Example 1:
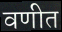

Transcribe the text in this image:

वणीत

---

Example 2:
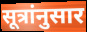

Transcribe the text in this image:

सूत्रांनुसार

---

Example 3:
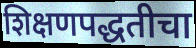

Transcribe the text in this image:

शिक्षणपद्धतीचा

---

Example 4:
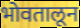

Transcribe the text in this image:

भोवतालून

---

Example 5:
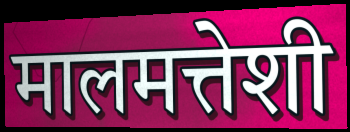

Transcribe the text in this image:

मालमत्तेशी